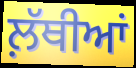
ਲ਼ੱਥੀਆਂ